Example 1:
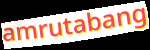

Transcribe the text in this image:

amrutabang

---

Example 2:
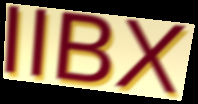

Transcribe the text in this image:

IIBX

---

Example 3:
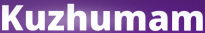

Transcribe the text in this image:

Kuzhumam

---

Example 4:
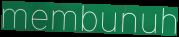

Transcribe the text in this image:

membunuh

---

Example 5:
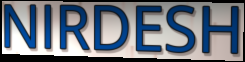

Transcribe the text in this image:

NIRDESH